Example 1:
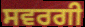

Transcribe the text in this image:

ਸਵਰਗੀ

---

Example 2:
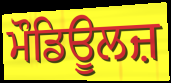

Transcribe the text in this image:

ਮੌਡਿਊਲਜ਼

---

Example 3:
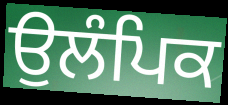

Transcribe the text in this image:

ਉਲੰਪਿਕ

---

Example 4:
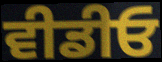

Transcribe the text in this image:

ਵੀਡੀਓ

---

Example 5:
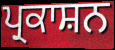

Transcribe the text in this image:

ਪ੍ਰਕਾਸ਼ਨ